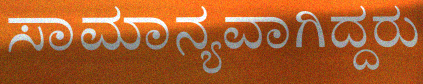
ಸಾಮಾನ್ಯವಾಗಿದ್ದರು